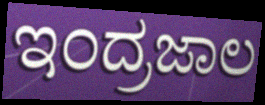
ಇಂದ್ರಜಾಲ